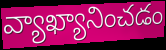
వ్యాఖ్యానించడం